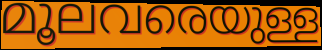
മൂലവരെയുള്ള